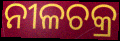
ନୀଳଚକ୍ର